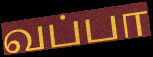
வப்பா